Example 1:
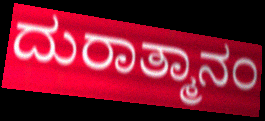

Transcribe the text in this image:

ದುರಾತ್ಮಾನಂ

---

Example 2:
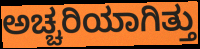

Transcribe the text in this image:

ಅಚ್ಚರಿಯಾಗಿತ್ತು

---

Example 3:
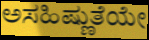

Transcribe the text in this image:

ಅಸಹಿಷ್ಣುತೆಯೇ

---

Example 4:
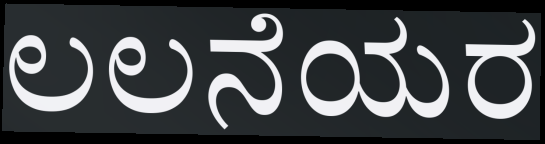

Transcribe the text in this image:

ಲಲನೆಯರ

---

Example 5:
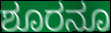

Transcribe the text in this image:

ಶೂರನೂ